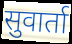
सुवार्ता